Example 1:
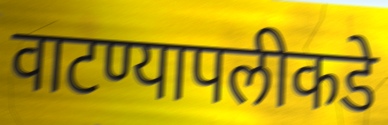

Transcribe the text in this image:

वाटण्यापलीकडे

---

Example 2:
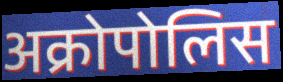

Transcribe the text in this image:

अक्रोपोलिस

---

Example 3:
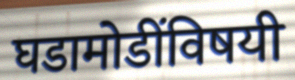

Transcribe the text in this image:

घडामोडींविषयी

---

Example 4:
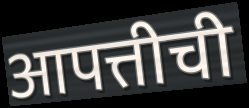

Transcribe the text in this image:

आपत्तीची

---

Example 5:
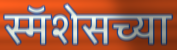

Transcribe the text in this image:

स्मॅशेसच्या